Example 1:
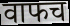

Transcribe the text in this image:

वाफच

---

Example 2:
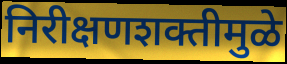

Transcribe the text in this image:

निरीक्षणशक्तीमुळे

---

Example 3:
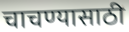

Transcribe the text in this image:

चाचण्यासाठी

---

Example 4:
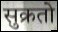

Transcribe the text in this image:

सुक्रतो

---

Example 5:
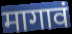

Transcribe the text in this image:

मागावं